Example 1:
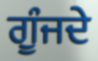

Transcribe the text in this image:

ਗੂੰਜਦੇ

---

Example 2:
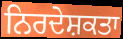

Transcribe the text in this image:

ਨਿਰਦੇਸ਼ਕਤਾ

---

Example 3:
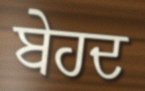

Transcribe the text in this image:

ਬੇਹਦ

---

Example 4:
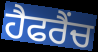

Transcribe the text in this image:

ਹੈਫਰੈਂਚ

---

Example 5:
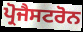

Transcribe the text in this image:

ਪ੍ਰੋਜੈਸਟਰੋਨ